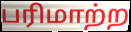
பரிமாற்ற